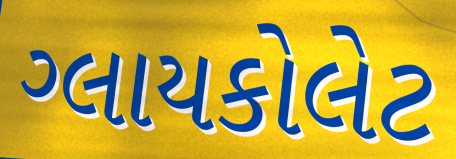
ગ્લાયકોલેટ